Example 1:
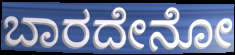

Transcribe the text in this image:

ಬಾರದೇನೋ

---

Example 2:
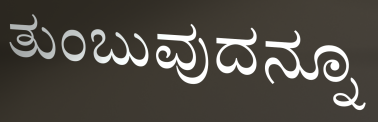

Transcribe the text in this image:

ತುಂಬುವುದನ್ನೂ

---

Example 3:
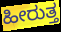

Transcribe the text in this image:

ಹೀರುತ್ತ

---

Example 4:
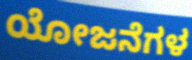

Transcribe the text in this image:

ಯೋಜನೆಗಳ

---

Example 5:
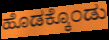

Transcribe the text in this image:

ಹೊಡಕ್ಕೊಂಡು